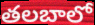
తలబాలో